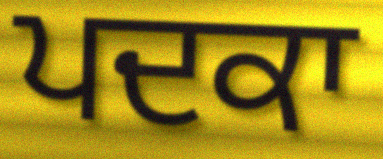
ਪਦਕਾ